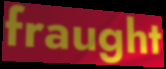
fraught